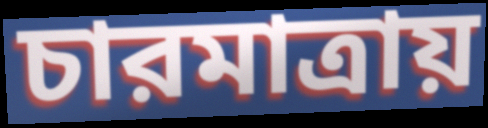
চারমাত্রায়